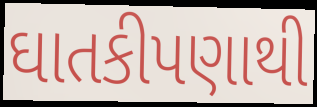
ઘાતકીપણાથી